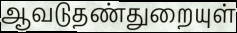
ஆவடுதண்துறையுள்